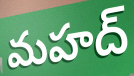
మహద్